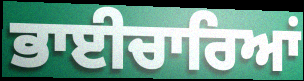
ਭਾਈਚਾਰਿਆਂ